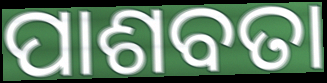
ପାଶବତା